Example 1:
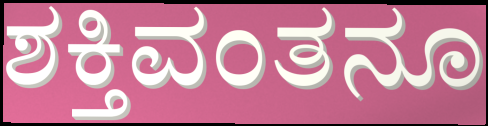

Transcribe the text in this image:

ಶಕ್ತಿವಂತನೂ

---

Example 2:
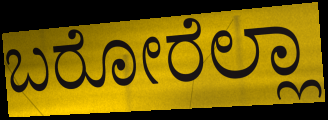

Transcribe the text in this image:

ಬರೋರೆಲ್ಲಾ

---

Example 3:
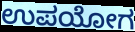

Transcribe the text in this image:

ಉಪಯೋಗ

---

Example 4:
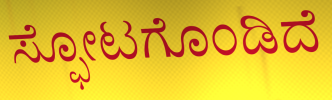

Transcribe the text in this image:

ಸ್ಫೋಟಗೊಂಡಿದೆ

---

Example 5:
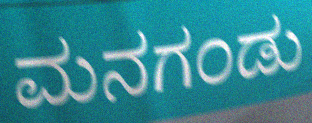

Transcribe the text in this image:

ಮನಗಂಡು